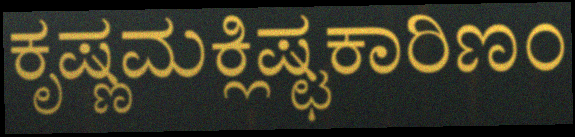
ಕೃಷ್ಣಮಕ್ಲಿಷ್ಟಕಾರಿಣಂ